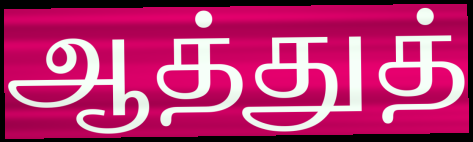
ஆத்துத்